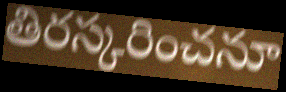
తిరస్కరించనూ